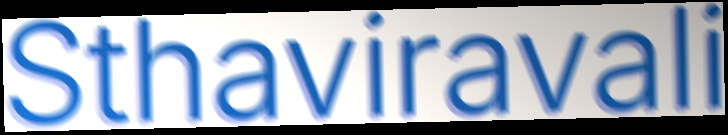
Sthaviravali